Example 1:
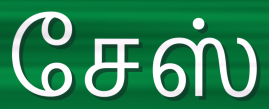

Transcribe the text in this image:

சேஸ்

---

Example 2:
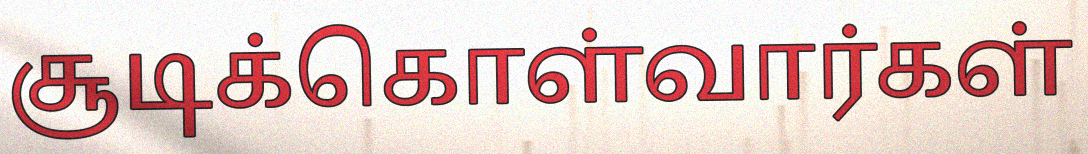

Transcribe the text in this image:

சூடிக்கொள்வார்கள்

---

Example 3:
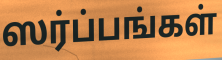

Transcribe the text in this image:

ஸர்ப்பங்கள்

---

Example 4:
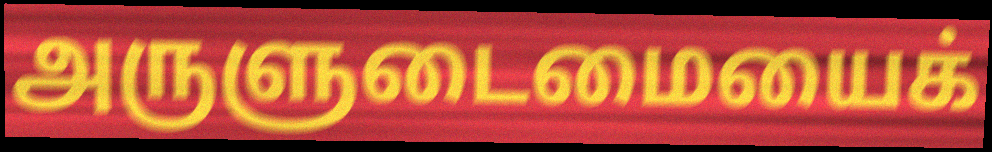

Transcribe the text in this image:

அருளுடைமையைக்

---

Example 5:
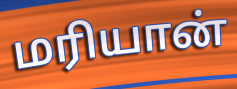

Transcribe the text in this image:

மரியான்